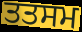
ਤਤਸਮ